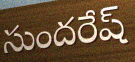
సుందరేష్